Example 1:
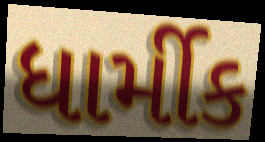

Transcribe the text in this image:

ધાર્મીક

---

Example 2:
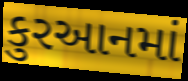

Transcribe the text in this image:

કુરઆનમાં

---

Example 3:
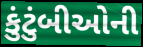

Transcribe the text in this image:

કુંટુંબીઓની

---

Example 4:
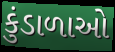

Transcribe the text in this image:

કુંડાળાઓ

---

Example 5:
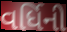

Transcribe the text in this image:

વર્ધિની